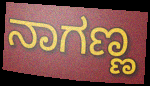
ನಾಗಣ್ಣ